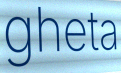
gheta